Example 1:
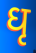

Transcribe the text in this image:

धृ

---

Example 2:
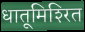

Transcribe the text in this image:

धातूमिश्रित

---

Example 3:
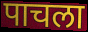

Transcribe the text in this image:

पाचला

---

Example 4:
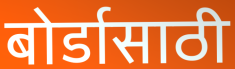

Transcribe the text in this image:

बोर्डासाठी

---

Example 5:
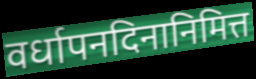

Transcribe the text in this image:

वर्धापनदिनानिमित्त